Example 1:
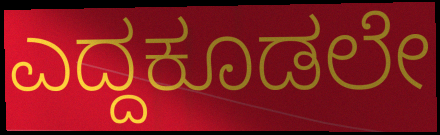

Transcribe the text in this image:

ಎದ್ದಕೂಡಲೇ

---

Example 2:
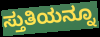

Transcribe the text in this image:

ಸ್ತುತಿಯನ್ನೂ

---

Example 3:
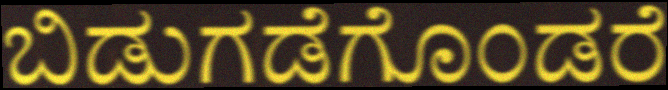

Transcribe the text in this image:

ಬಿಡುಗಡೆಗೊಂಡರೆ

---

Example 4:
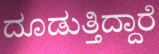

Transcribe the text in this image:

ದೂಡುತ್ತಿದ್ದಾರೆ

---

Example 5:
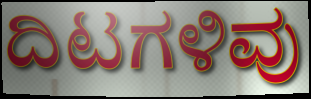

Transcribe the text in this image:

ದಿಟಗಳಿವು